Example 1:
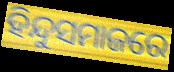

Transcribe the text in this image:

ହିନ୍ଦୁସମାଜରେ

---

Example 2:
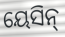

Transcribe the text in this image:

ୟେସିନ୍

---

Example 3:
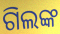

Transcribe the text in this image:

ଗିଲଙ୍କ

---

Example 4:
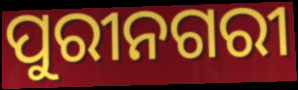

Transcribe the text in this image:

ପୁରୀନଗରୀ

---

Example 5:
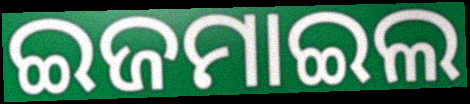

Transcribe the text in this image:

ଇଜମାଇଲ